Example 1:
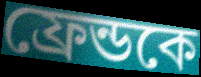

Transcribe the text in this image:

ফ্রেন্ডকে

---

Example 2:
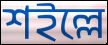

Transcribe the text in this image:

শইল্লে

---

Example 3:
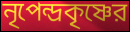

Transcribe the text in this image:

নৃপেন্দ্রকৃষ্ণের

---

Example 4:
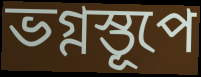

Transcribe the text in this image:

ভগ্নস্তূপে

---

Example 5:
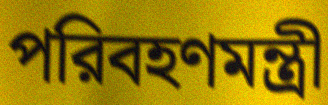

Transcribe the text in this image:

পরিবহণমন্ত্রী